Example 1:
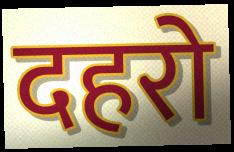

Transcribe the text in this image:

दहरो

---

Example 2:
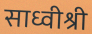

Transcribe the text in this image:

साध्वीश्री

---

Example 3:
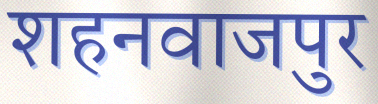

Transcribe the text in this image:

शहनवाजपुर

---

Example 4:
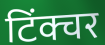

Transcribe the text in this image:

टिंक्चर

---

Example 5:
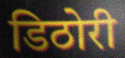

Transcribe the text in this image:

डिठोरी